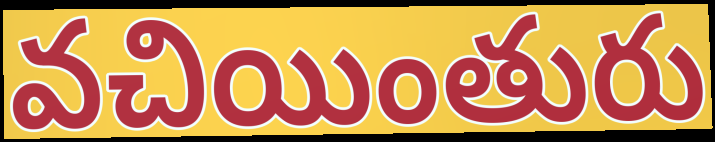
వచియింతురు